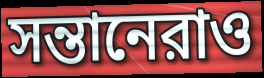
সন্তানেরাও